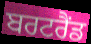
ਬਰਟਰੈਂਡ